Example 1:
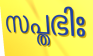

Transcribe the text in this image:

സപ്തഭിഃ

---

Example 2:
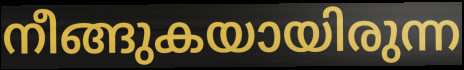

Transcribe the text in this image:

നീങ്ങുകയായിരുന്ന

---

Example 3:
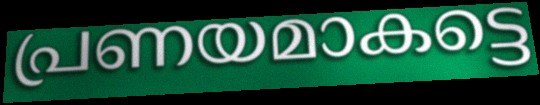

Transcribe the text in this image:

പ്രണയമാകട്ടെ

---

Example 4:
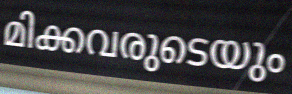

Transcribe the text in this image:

മിക്കവരുടെയും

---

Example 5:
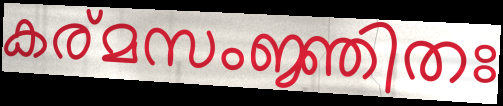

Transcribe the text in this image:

കര്മസംജ്ഞിതഃ